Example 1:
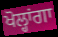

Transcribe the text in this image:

ਖੋਲ੍ਹਾਂਗਾ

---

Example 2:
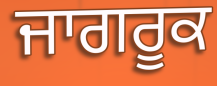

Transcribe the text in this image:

ਜਾਗਰੂਕ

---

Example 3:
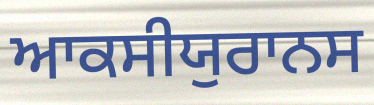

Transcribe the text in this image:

ਆਕਸੀਯੁਰਾਨਸ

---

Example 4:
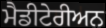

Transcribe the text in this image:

ਮੈਡੀਟੇਰੀਅਨ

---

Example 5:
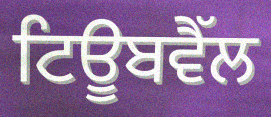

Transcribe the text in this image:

ਟਿਊਬਵੈੱਲ